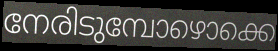
നേരിടുമ്പോഴൊക്കെ